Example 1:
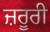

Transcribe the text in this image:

ਜ਼ਰੂਰੀ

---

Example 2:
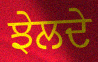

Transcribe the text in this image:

ਝੇਲਦੇ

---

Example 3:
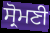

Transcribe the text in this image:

ਸ੍ਰੋਮਣੀ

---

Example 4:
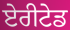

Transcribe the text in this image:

ਏਰੀਟੇਡ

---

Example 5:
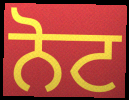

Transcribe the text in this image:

ਨੋਟ